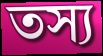
তস্য